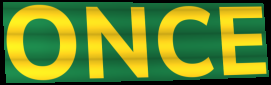
ONCE